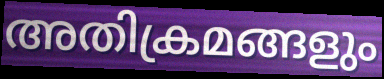
അതിക്രമങ്ങളും